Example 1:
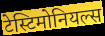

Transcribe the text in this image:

टेस्टिमोनियल्स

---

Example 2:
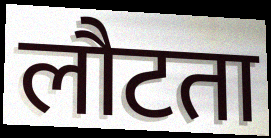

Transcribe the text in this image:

लौटता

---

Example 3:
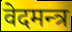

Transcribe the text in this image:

वेदमन्त्र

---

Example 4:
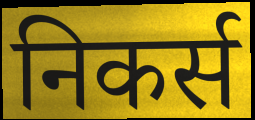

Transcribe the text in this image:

निकर्स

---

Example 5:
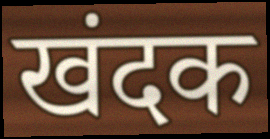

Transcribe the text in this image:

खंदक